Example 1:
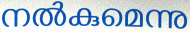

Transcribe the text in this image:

നൽകുമെന്നു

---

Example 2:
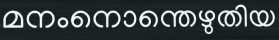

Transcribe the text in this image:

മനംനൊന്തെഴുതിയ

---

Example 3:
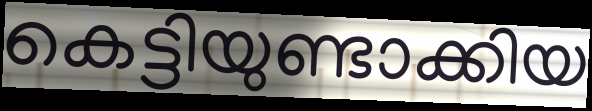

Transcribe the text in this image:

കെട്ടിയുണ്ടാക്കിയ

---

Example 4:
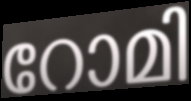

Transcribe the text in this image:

റോമി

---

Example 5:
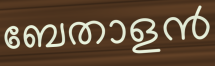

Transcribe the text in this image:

ബേതാളൻ